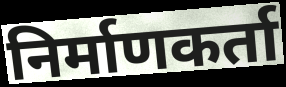
निर्माणकर्ता